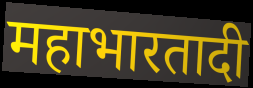
महाभारतादी